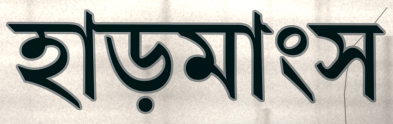
হাড়মাংস